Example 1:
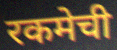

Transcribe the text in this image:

रकमेची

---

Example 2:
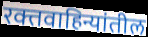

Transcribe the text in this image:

रक्तवाहिन्यांतील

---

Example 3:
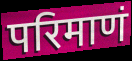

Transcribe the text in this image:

परिमाणं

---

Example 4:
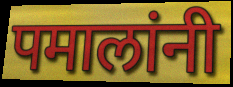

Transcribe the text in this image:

पमालांनी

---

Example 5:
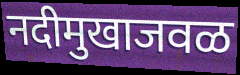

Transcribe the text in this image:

नदीमुखाजवळ